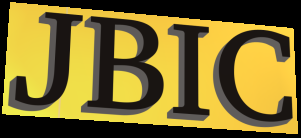
JBIC